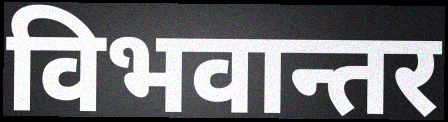
विभवान्तर